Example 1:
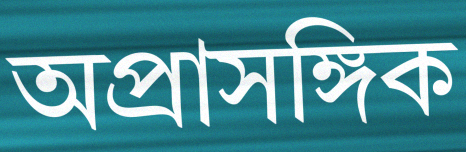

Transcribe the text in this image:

অপ্রাসঙ্গিক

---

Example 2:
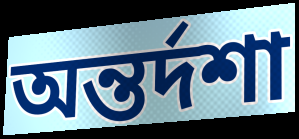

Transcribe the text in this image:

অন্তর্দশা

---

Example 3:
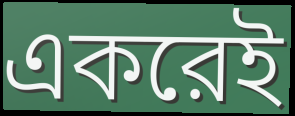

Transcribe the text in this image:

একরেই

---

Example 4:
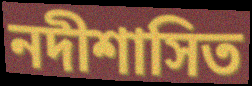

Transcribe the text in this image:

নদীশাসিত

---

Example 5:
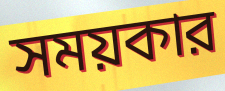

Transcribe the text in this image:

সময়কার